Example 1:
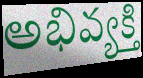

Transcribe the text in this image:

అభివ్యక్తి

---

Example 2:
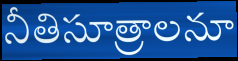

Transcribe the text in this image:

నీతిసూత్రాలనూ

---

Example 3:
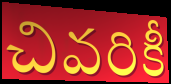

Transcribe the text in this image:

చివరికీ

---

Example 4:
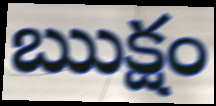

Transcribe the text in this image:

ఋక్షం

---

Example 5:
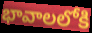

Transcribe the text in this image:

భావాలలోకి